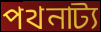
পথনাট্য